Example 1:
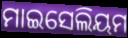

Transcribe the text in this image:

ମାଇସେଲିୟମ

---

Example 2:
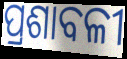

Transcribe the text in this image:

ପ୍ରଶାବଳୀ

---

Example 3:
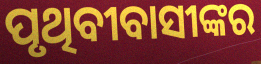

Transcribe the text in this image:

ପୃଥିବୀବାସୀଙ୍କର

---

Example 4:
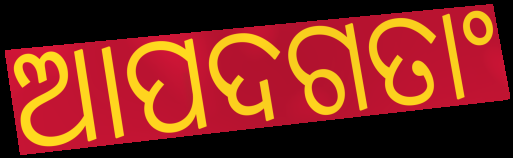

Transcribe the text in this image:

ଆପଦଗତାଂ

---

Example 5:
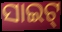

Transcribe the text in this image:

ସାଇଟ୍